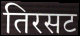
तिरसट